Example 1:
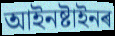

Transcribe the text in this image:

আইনষ্টাইনৰ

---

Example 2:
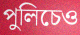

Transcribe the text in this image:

পুলিচেও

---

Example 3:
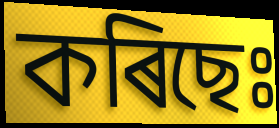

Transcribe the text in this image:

কৰিছেঃ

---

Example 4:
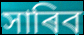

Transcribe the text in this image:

সাৰিব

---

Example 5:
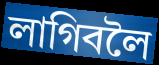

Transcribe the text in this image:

লাগিবলৈ